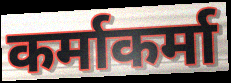
कर्माकर्मा